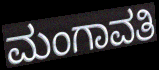
ಮಂಗಾವತಿ